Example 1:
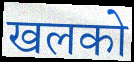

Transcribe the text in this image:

खलको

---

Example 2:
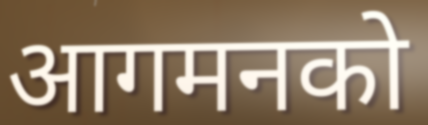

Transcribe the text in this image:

आगमनको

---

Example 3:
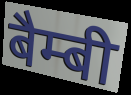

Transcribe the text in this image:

बैम्बी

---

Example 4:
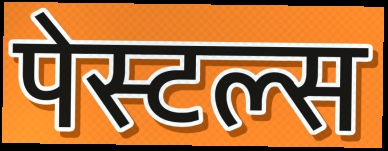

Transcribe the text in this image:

पेस्टल्स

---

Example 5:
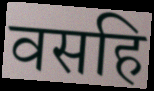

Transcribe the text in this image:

वसहि